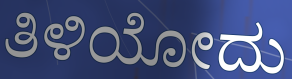
ತಿಳಿಯೋದು